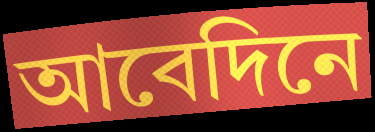
আবেদিনে